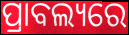
ପ୍ରାବଲ୍ୟରେ